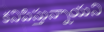
కనిపిస్తున్నాయని